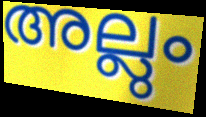
അല്ലും